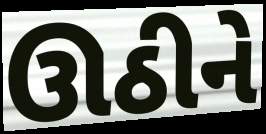
ઊઠીને